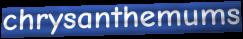
chrysanthemums